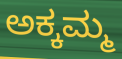
ಅಕ್ಕಮ್ಮ